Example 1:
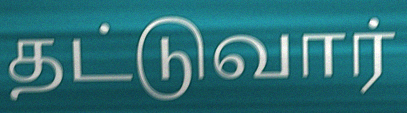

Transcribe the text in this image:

தட்டுவார்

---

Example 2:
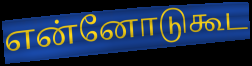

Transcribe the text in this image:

என்னோடுகூட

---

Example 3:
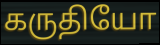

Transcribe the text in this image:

கருதியோ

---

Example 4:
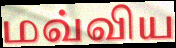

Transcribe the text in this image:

மவ்விய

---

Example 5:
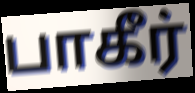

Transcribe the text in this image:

பாகீர்